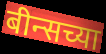
बीन्सच्या